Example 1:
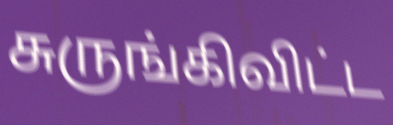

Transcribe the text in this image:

சுருங்கிவிட்ட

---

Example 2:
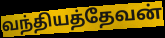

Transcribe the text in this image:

வந்தியத்தேவன்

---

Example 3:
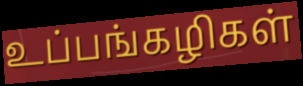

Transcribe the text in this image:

உப்பங்கழிகள்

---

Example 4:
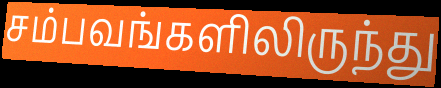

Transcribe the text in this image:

சம்பவங்களிலிருந்து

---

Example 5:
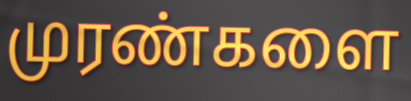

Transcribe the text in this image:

முரண்களை